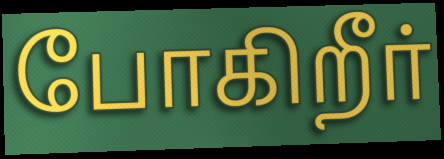
போகிறீர்